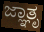
ಜ್ಞಾತೃ